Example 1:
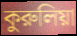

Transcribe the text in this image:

কুরুলিয়া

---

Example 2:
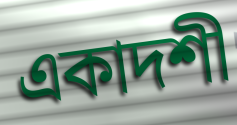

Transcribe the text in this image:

একাদশী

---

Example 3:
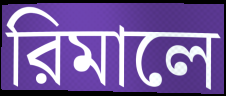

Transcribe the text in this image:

রিমালে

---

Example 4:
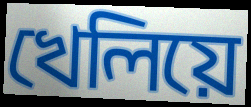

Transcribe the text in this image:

খেলিয়ে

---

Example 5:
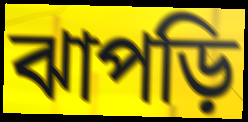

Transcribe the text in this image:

ঝাপড়ি